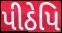
પીઠેપિ